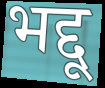
भद्दू